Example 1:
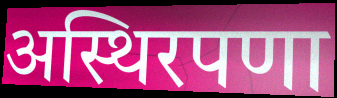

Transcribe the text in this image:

अस्थिरपणा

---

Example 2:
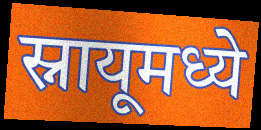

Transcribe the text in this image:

स्नायूमध्ये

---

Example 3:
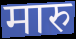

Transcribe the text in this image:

मारु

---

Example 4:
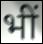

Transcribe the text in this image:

भीं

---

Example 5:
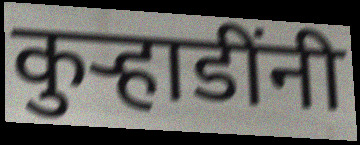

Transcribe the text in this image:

कुर्‍हाडींनी